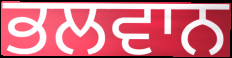
ਭਲਵਾਨ